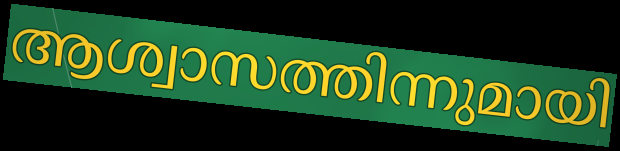
ആശ്വാസത്തിന്നുമായി